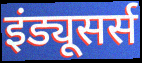
इंड्यूसर्स